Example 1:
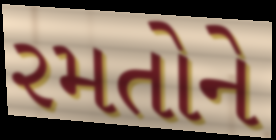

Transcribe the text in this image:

રમતોને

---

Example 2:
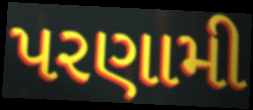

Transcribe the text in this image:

પરણામી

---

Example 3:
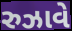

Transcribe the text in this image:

રુઝાવે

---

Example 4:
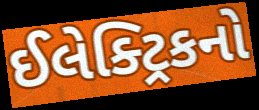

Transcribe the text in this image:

ઈલેક્ટ્રિકનો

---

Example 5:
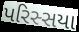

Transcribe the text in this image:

પરિસ્સયા